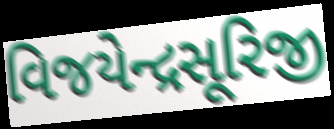
વિજયેન્દ્રસૂરિજી